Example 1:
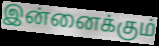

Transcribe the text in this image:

இன்னைக்கும்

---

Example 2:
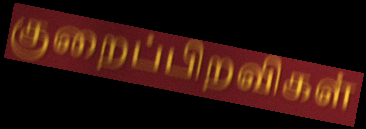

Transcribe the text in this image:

குறைப்பிறவிகள்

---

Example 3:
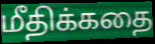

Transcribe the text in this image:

மீதிக்கதை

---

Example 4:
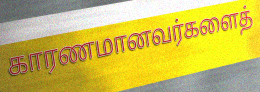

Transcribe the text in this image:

காரணமானவர்களைத்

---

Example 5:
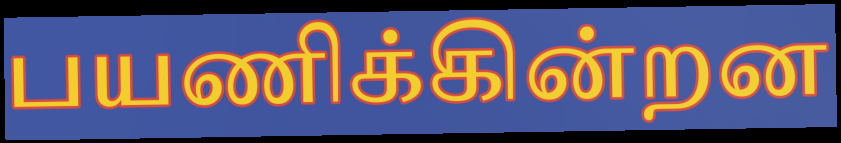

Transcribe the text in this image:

பயணிக்கின்றன